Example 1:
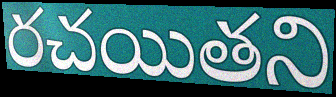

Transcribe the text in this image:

రచయితని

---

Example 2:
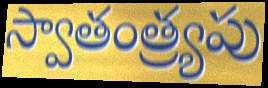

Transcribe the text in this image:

స్వాతంత్ర్యపు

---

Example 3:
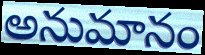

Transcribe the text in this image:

అనుమానం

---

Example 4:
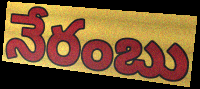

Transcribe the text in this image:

నేరంబు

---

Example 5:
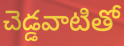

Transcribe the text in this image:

చెడ్డవాటితో